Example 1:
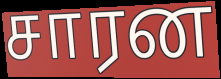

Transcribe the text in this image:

சாரன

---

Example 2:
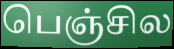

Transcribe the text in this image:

பெஞ்சில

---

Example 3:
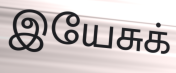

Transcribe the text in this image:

இயேசுக்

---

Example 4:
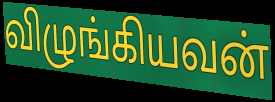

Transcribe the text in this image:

விழுங்கியவன்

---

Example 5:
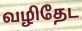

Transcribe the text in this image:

வழிதேட